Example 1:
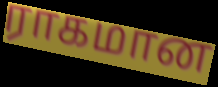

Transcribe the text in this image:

ராகமான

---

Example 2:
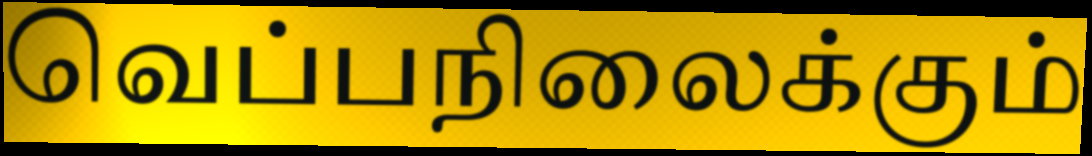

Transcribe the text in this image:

வெப்பநிலைக்கும்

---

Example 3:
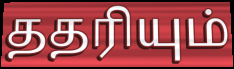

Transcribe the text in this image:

ததரியும்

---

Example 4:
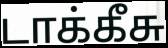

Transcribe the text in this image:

டாக்கீசு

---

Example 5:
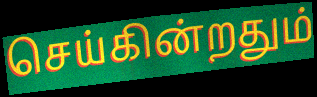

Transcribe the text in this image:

செய்கின்றதும்